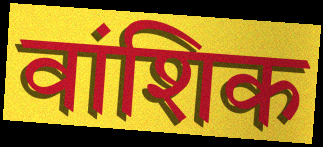
वांशिक